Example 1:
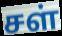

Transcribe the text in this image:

சள்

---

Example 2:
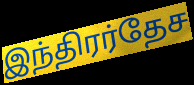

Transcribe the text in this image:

இந்திரர்தேச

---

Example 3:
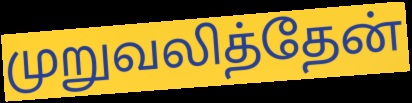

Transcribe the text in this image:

முறுவலித்தேன்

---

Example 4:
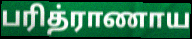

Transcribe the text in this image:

பரித்ராணாய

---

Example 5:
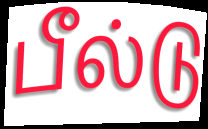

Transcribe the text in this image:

பீல்டு